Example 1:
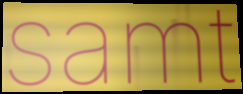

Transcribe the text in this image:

samt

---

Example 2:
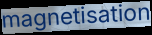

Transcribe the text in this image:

magnetisation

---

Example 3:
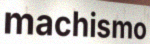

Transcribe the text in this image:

machismo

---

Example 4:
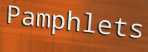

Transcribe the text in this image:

Pamphlets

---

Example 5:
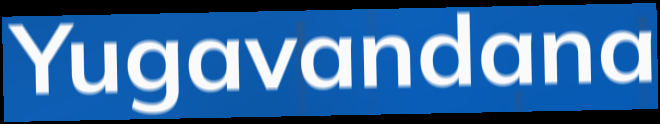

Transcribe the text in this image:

Yugavandana